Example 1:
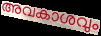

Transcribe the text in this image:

അവകാശവും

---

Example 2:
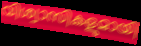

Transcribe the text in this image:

വിശ്വാസികളുമായി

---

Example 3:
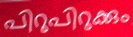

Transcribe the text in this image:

പിറുപിറുക്കും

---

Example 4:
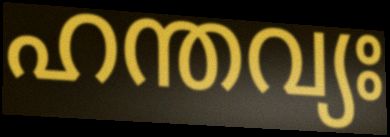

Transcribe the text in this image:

ഹന്തവ്യഃ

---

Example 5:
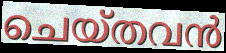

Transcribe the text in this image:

ചെയ്തവൻ